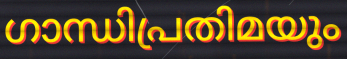
ഗാന്ധിപ്രതിമയും